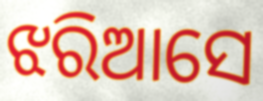
ଝରିଆସେ